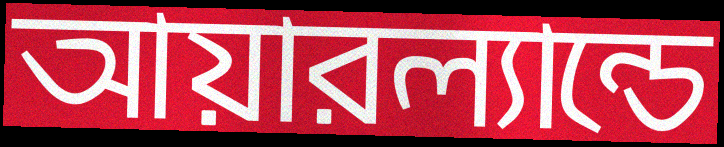
আয়ারল্যান্ডে